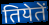
तियेतें